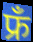
फ्रँ